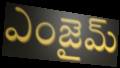
ఎంజైమ్